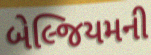
બેલ્જિયમની